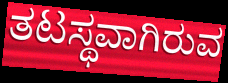
ತಟಸ್ಥವಾಗಿರುವ